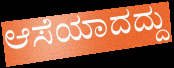
ಆಸೆಯಾದದ್ದು